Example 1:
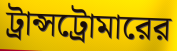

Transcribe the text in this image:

ট্রান্সট্রোমারের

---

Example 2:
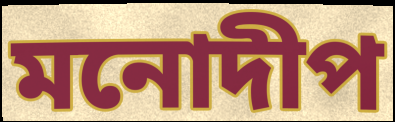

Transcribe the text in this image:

মনোদীপ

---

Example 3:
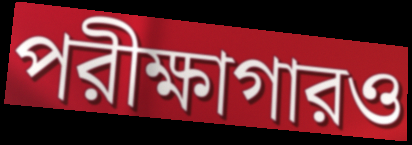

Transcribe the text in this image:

পরীক্ষাগারও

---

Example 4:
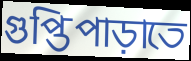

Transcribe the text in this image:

গুপ্তিপাড়াতে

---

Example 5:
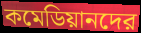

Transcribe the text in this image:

কমেডিয়ানদের